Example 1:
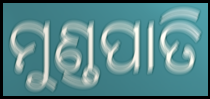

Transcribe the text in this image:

ମୁଣ୍ଡପାତି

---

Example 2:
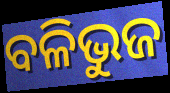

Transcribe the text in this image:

ବଳିଭୁଜ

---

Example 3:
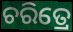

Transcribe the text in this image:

ଚରିତ୍ରେ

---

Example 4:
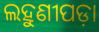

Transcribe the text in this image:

ଲହୁଣୀପଡ଼ା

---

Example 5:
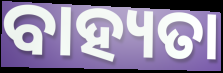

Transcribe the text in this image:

ବାହ୍ୟତା